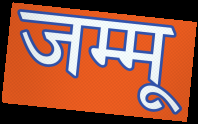
जम्मू